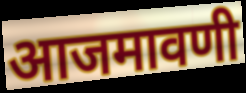
आजमावणी